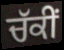
ਚੱਕੀਂ